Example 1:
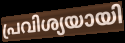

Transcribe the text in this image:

പ്രവിശ്യയായി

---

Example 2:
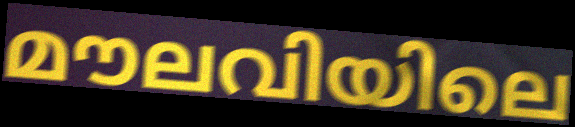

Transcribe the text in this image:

മൗലവിയിലെ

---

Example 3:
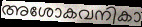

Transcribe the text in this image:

അശോകവനികാ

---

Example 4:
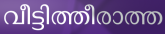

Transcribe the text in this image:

വീട്ടിത്തീരാത്ത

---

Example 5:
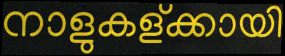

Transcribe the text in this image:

നാളുകള്ക്കായി